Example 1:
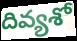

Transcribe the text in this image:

దివ్యశో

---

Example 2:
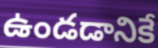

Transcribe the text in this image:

ఉండడానికే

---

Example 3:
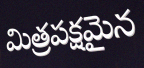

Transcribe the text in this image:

మిత్రపక్షమైన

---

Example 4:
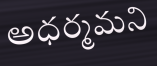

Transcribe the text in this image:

అధర్మమని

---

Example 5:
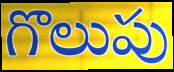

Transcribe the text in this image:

గొలుపు